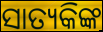
ସାତ୍ୟକିଙ୍କ